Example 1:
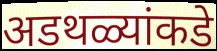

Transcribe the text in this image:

अडथळ्यांकडे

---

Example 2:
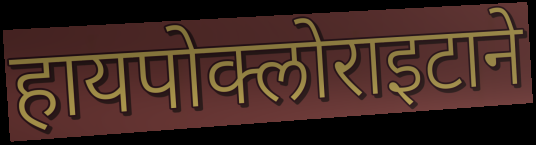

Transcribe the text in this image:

हायपोक्लोराइटाने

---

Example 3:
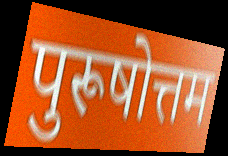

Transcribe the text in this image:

पुरूषोत्तम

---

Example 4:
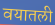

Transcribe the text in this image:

वयातली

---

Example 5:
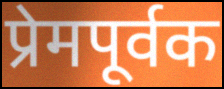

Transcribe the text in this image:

प्रेमपूर्वक